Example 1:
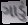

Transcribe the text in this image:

ગાડું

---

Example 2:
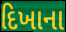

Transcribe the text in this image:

દિખાના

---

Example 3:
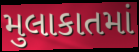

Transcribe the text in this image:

મુલાકાતમાં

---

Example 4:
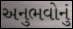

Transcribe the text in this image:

અનુભવોનું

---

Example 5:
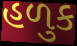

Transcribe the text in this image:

હળુક